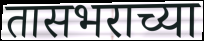
तासभराच्या